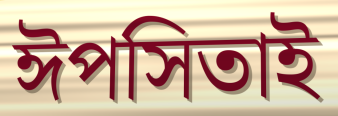
ঈপসিতাই